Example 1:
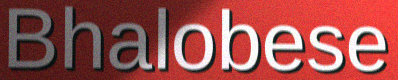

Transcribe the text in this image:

Bhalobese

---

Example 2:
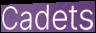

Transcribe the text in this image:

Cadets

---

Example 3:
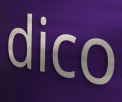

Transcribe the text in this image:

dico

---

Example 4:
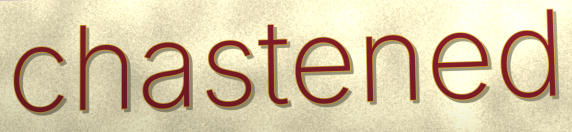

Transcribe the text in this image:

chastened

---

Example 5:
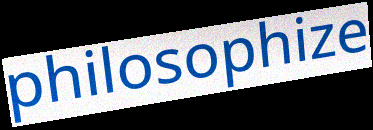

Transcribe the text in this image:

philosophize